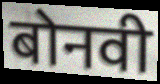
बोनवी